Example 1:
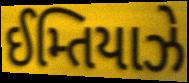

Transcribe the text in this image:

ઈમ્તિયાઝે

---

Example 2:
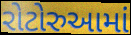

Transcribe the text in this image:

રોટોરુઆમાં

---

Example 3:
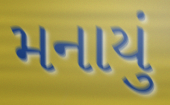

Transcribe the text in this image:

મનાયું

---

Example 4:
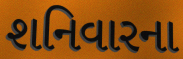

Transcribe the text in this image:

શનિવારના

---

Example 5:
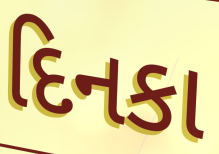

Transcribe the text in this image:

દિનકા